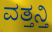
ವತ್ತನ್ತಿ